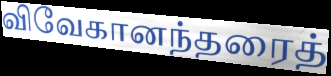
விவேகானந்தரைத்